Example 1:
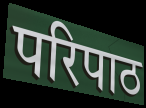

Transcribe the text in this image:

परिपाठ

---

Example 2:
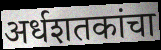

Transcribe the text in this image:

अर्धशतकांचा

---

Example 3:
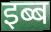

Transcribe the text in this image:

इब्ब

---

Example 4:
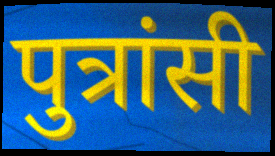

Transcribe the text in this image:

पुत्रांसी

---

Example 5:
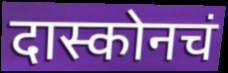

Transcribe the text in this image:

दास्कोनचं